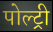
पोल्ट्री